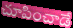
చూపించాడే